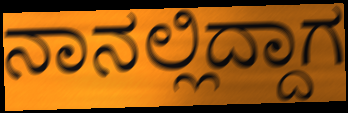
ನಾನಲ್ಲಿದ್ದಾಗ